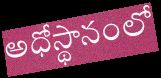
అధోస్థానంలో